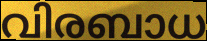
വിരബാധ